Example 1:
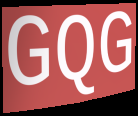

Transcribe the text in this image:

GQG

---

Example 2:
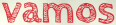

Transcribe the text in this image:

vamos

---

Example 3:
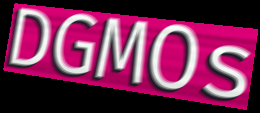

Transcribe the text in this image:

DGMOs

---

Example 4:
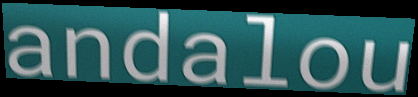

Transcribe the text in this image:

andalou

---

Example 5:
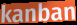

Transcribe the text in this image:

kanban